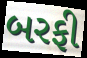
બરફી